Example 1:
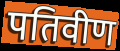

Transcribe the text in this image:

पतिवीण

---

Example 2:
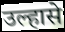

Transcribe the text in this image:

उल्हासे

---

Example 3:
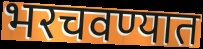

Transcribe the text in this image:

भरचवण्यात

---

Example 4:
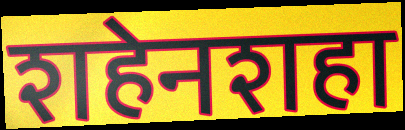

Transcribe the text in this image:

शहेनशहा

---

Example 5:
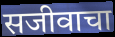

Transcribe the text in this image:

सजीवाचा